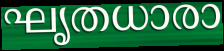
ഘൃതധാരാ